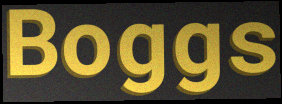
Boggs